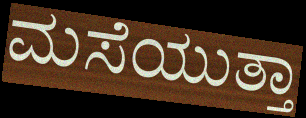
ಮಸೆಯುತ್ತಾ